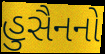
હુસૈનનો